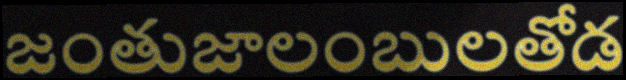
జంతుజాలంబులతోడ